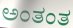
ಅಂತಂತ